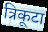
त्रिकूटा